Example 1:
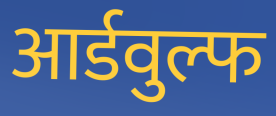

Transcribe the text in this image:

आर्डवुल्फ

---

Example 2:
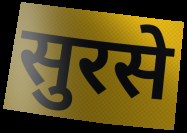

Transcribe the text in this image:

सुरसे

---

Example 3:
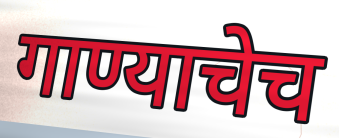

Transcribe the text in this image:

गाण्याचेच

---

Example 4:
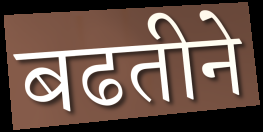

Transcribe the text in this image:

बढतीने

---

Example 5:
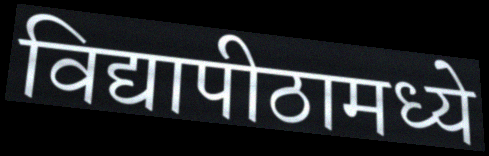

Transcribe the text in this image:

विद्यापीठामध्ये